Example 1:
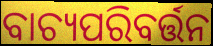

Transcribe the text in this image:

ବାଚ୍ୟପରିବର୍ତ୍ତନ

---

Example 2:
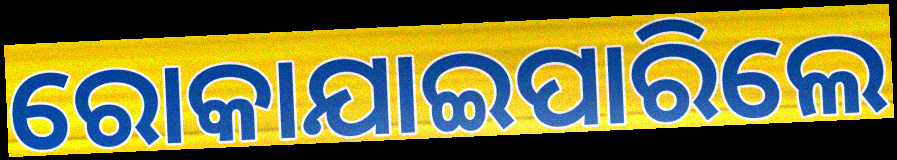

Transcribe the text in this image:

ରୋକାଯାଇପାରିଲେ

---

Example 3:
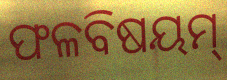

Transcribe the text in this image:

ଫଳବିଷୟମ୍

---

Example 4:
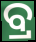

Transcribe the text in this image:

ବ୍ର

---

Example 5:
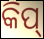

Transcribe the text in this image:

କିପ୍